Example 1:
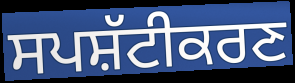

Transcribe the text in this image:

ਸਪਸ਼ੱਟੀਕਰਣ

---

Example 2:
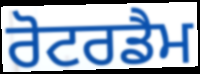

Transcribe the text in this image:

ਰੋਟਰਡੈਮ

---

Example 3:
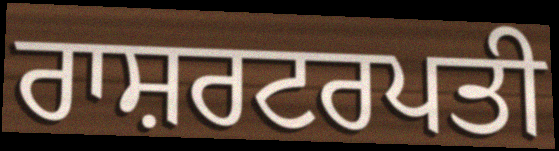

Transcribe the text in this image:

ਰਾਸ਼ਰਟਰਪਤੀ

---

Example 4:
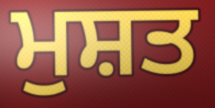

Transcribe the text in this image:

ਮੁਸ਼ਤ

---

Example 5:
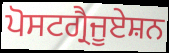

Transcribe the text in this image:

ਪੋਸਟਗ੍ਰੈਜੂਏਸ਼ਨ